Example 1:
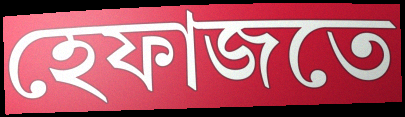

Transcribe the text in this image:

হেফাজতে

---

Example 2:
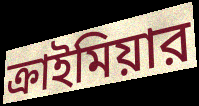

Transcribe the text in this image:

ক্রাইমিয়ার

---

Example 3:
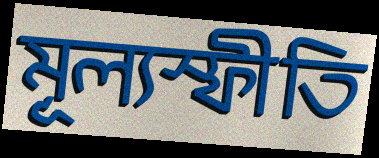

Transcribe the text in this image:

মূল্যস্ফীতি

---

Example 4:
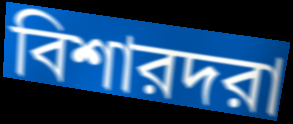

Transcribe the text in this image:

বিশারদরা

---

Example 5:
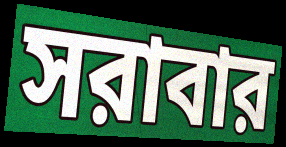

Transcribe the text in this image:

সরাবার